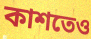
কাশতেও